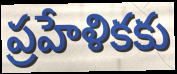
ప్రహేళికకు